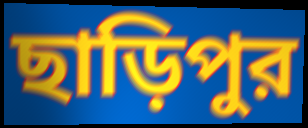
ছাড়িপুর